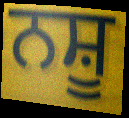
ਨਸ਼ੂ